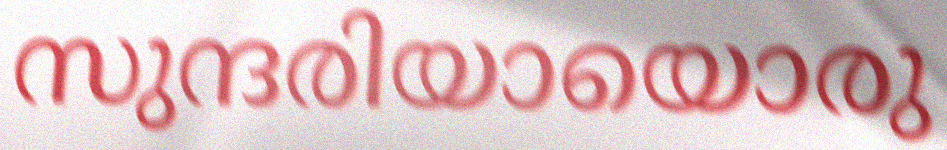
സുന്ദരിയായൊരു